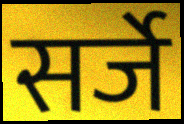
सर्जे